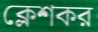
ক্লেশকর